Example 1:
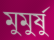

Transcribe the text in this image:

মুমুর্ষু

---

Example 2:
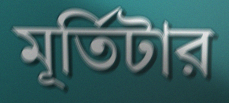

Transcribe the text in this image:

মূর্তিটার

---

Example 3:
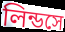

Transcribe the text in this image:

লিন্ডসে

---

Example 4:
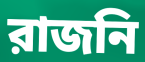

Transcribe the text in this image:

রাজনি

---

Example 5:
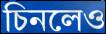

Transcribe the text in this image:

চিনলেও